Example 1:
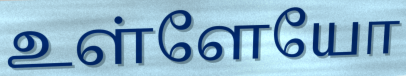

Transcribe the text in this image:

உள்ளேயோ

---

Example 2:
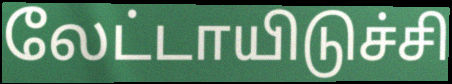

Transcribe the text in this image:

லேட்டாயிடுச்சி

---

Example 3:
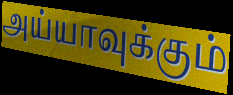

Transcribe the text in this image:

அய்யாவுக்கும்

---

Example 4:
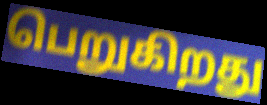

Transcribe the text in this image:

பெறுகிறது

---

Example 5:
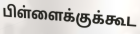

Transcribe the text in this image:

பிள்ளைக்குக்கூட